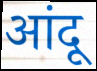
आंदू